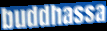
buddhassa